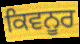
ਕਿਵਨੂਰ